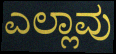
ಎಲ್ಲಾವು